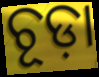
ଚୂଡ଼ା